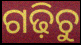
ଗଢ଼ିଚୁ